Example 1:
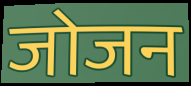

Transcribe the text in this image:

जोजन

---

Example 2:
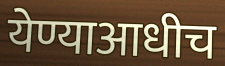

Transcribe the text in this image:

येण्याआधीच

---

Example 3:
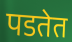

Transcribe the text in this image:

पडतेत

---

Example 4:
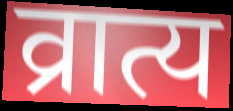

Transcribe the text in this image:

व्रात्य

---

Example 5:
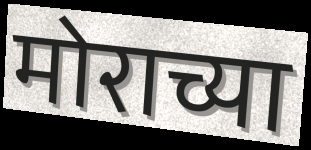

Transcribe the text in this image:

मोराच्या